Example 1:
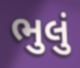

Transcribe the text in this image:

ભુલું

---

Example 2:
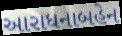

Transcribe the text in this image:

આરાધનાબહેન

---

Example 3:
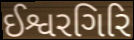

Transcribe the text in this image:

ઈશ્વરગિરિ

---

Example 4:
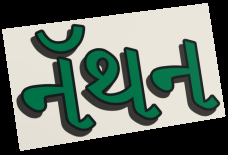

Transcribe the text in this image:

નૅથન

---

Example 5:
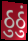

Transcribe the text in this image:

ઠુઠું